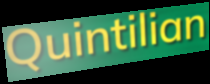
Quintilian